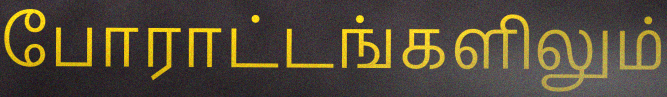
போராட்டங்களிலும்